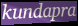
kundapra